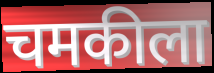
चमकीला